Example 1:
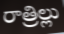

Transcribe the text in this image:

రాత్రిల్లు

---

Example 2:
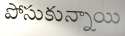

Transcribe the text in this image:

పోసుకున్నాయి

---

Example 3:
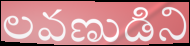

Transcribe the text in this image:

లవణుడిని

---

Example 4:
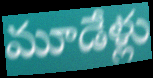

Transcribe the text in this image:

మూడేళ్లు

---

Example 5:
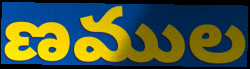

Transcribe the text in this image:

ణముల